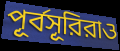
পূর্বসূরিরাও